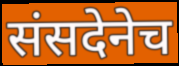
संसदेनेच